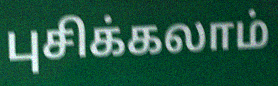
புசிக்கலாம்